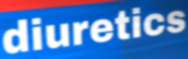
diuretics